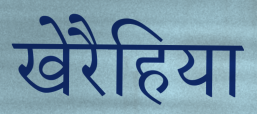
खेरैहिया